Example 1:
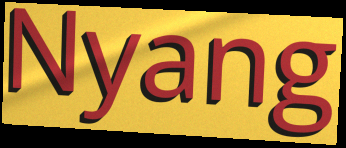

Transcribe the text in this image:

Nyang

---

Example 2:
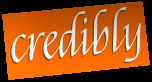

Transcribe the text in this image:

credibly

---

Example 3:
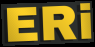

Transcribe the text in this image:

ERi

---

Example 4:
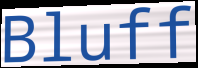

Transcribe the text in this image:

Bluff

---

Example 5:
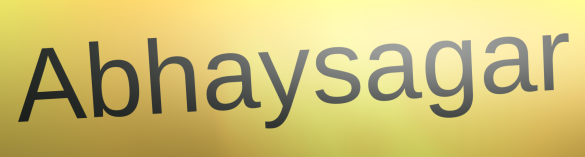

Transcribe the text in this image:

Abhaysagar